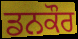
ਡਨਕੌਰ